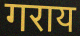
गराय